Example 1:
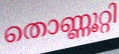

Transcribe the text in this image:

തൊണ്ണൂറ്റി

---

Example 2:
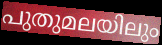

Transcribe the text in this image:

പുതുമലയിലും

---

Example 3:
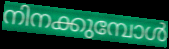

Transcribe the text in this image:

നിനക്കുമ്പോൾ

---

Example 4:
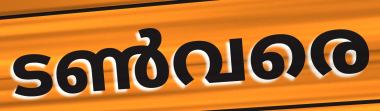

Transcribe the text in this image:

ടൺവരെ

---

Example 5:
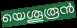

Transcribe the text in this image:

യെശൂരൂൻ